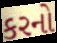
કરનો